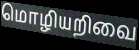
மொழியறிவை